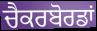
ਚੈਕਰਬੋਰਡਾਂ